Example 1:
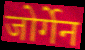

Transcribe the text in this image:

जोर्गेन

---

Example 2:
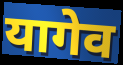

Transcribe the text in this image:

यागेव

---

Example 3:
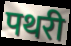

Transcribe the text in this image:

पथरी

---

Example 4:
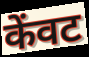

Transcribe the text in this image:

केंवट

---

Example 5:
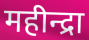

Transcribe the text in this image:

महीन्द्रा